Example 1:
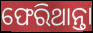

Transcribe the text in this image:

ଫେରିଥାନ୍ତା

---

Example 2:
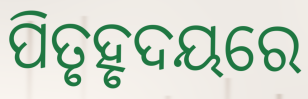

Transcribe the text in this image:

ପିତୃହୃଦୟରେ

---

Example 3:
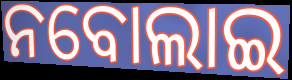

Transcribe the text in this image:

ନବୋଲାଇ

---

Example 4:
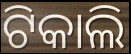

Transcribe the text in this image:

ଟିକାଲି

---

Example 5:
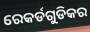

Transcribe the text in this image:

ରେକର୍ଡଗୁଡିକର